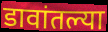
डावांतल्या